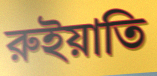
রুইয়াতি